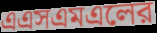
এএসএমএলের